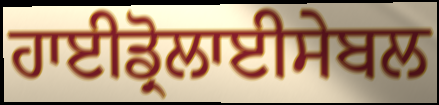
ਹਾਈਡ੍ਰੋਲਾਈਸੇਬਲ